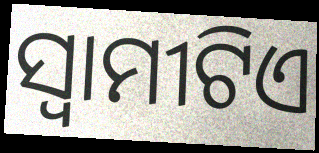
ସ୍ୱାମୀଟିଏ